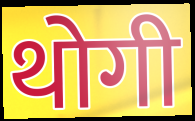
थोगी